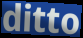
ditto